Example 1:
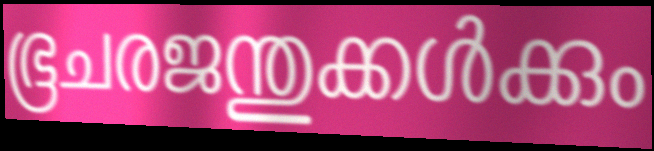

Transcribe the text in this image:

ഭൂചരജന്തുക്കൾക്കും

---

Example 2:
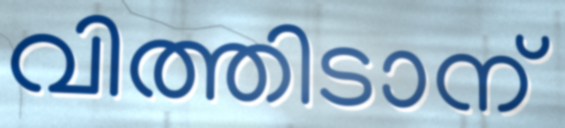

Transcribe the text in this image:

വിത്തിടാന്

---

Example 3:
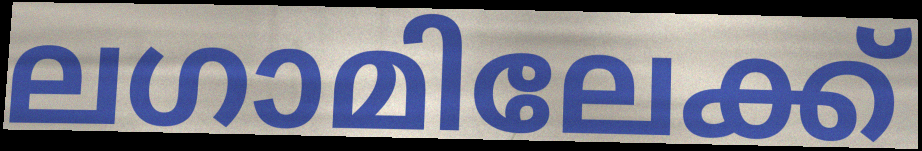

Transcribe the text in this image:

ലഗാമിലേക്ക്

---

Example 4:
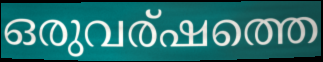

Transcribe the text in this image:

ഒരുവര്ഷത്തെ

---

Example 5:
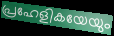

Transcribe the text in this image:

പ്രഹേളികയേയും